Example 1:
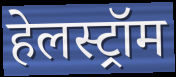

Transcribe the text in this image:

हेलस्ट्रॉम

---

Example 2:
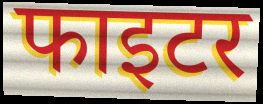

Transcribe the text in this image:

फाइटर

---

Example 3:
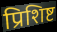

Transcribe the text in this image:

प्रिशिष्ट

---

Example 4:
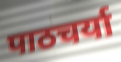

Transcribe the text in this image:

पाठचर्या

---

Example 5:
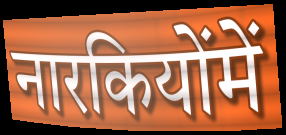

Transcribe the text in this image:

नारकियोंमें